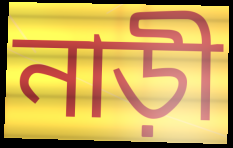
নাড়ী